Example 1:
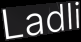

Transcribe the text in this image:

Ladli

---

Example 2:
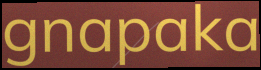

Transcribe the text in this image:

gnapaka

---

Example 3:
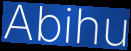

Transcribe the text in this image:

Abihu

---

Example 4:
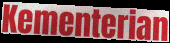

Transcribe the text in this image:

Kementerian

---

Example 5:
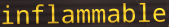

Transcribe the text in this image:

inflammable